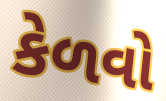
કેળવો